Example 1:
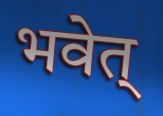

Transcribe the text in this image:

भवेत्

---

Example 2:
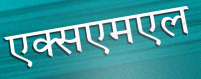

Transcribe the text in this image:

एक्सएमएल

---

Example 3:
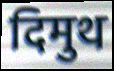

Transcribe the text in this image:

दिमुथ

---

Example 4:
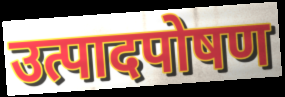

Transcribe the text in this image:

उत्पादपोषण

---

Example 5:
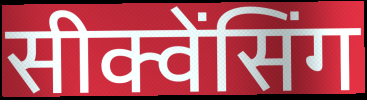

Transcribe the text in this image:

सीक्वेंसिंग